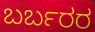
ಬರ್ಬರರ